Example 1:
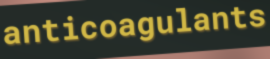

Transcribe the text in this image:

anticoagulants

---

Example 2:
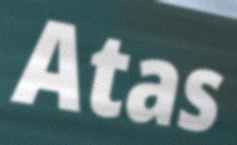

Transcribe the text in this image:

Atas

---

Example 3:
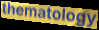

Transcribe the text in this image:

thematology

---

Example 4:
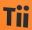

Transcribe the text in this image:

Tii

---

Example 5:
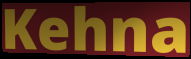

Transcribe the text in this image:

Kehna